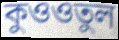
কুওওতুল